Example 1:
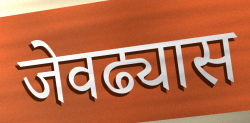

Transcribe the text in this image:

जेवढ्यास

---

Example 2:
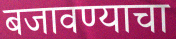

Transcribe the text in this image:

बजावण्याचा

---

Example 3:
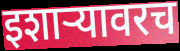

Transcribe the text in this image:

इशाऱ्यावरच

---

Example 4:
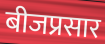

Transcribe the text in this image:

बीजप्रसार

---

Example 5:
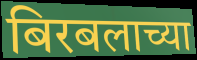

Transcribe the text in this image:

बिरबलाच्या